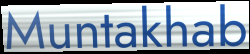
Muntakhab